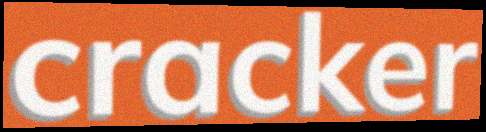
cracker